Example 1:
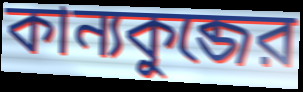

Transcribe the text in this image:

কান্যকুব্জের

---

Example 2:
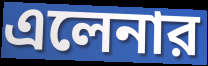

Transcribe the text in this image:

এলেনার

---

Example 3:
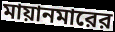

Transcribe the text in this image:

মায়ানমারের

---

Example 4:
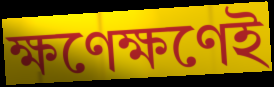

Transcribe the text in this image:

ক্ষণেক্ষণেই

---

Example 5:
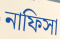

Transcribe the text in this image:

নাফিসা